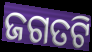
ଜଗତଟି